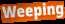
Weeping